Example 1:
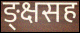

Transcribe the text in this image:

ङ्क्षसह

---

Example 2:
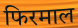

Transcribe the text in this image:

फिरमाल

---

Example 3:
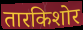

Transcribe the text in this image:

तारकिशोर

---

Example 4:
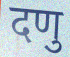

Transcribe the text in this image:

दणु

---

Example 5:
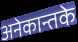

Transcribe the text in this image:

अनेकान्तके